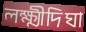
লক্ষ্মীদিঘা